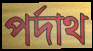
পর্দাথ